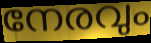
നേരവും